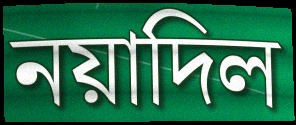
নয়াদিল